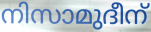
നിസാമുദീന്